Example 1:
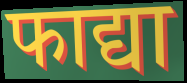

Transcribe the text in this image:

फाद्या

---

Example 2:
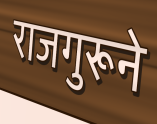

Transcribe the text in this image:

राजगुरूने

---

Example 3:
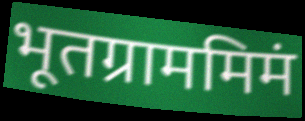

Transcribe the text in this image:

भूतग्राममिमं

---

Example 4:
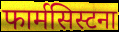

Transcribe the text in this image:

फार्मसिस्टना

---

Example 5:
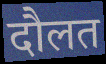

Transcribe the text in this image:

दौलत